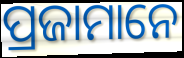
ପ୍ରଜାମାନେ